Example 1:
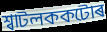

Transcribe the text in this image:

শ্বাটলককটোৰ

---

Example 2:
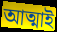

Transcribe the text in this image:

আত্মাই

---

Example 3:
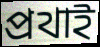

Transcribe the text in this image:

প্ৰথাই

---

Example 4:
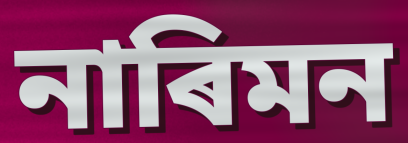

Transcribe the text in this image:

নাৰিমন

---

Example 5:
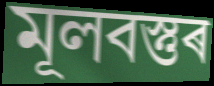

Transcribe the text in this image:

মূলবস্তুৰ